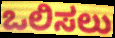
ಒಲಿಸಲು